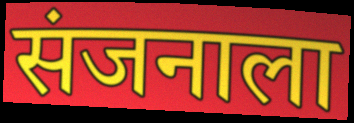
संजनाला